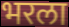
भरला